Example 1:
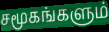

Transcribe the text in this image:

சமூகங்களும்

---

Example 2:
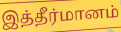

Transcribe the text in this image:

இத்தீர்மானம்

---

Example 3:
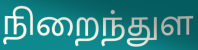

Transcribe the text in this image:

நிறைந்துள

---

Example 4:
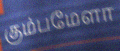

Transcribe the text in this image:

கும்பமேளா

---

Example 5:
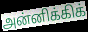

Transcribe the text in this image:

அன்னிக்கிக்